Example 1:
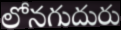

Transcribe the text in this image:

లోనగుదురు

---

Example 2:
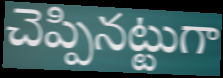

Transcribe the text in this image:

చెప్పినట్టుగా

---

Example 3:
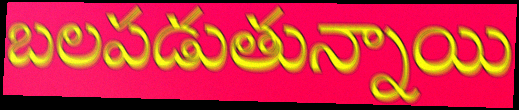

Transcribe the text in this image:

బలపడుతున్నాయి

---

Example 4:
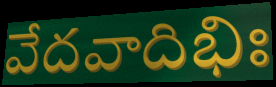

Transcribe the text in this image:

వేదవాదిభిః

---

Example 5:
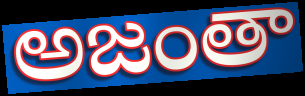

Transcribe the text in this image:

అజంతా